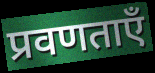
प्रवणताएँ